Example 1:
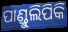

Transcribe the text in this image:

ପାଣ୍ଡୁଲିପିକି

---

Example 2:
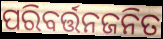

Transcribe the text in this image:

ପରିବର୍ତ୍ତନଜନିତ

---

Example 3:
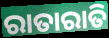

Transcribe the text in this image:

ରାତାରାତି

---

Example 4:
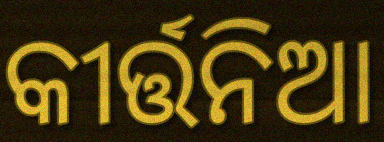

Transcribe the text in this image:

କୀର୍ତ୍ତନିଆ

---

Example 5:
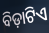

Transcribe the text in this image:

ବିଡ଼ାଟିଏ